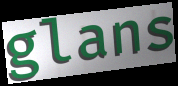
glans